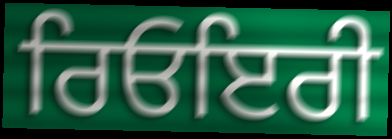
ਰਿਓਇਰੀ